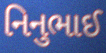
નિનુભાઈ